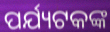
ପର୍ଯ୍ୟଟକଙ୍କ